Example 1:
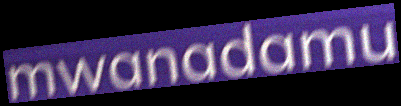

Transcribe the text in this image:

mwanadamu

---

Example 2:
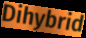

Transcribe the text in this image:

Dihybrid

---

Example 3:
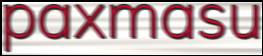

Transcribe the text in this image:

paxmasu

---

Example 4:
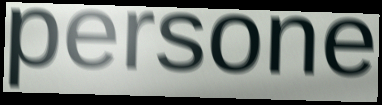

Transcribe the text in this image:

persone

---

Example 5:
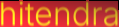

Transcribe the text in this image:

hitendra